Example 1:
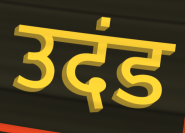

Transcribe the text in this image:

उदंड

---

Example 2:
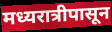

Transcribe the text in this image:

मध्यरात्रीपासून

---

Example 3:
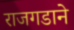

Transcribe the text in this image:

राजगडाने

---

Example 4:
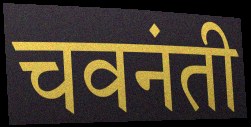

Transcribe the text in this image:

चवनंती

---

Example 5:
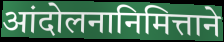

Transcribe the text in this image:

आंदोलनानिमित्ताने